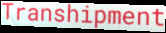
Transhipment